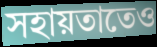
সহায়তাতেও